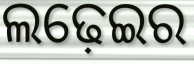
ଲଢ଼େଇର